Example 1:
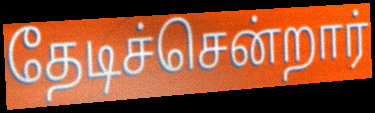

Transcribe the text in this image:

தேடிச்சென்றார்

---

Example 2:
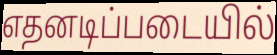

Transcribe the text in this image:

எதனடிப்படையில்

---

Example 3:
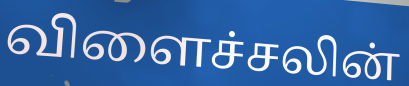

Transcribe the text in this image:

விளைச்சலின்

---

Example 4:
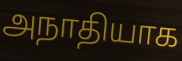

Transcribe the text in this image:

அநாதியாக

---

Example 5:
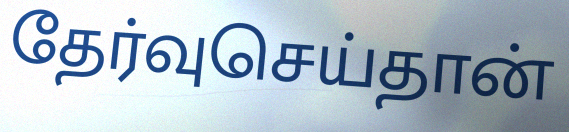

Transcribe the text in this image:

தேர்வுசெய்தான்